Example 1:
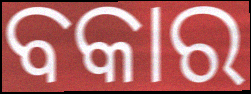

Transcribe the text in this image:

ବକାର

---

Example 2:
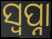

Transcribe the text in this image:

ସ୍ୱପ୍ନା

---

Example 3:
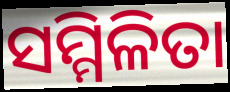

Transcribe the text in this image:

ସମ୍ମିଳିତା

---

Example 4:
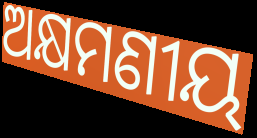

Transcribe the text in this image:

ଅକ୍ଷମଣୀୟ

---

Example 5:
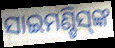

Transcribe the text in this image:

ସାଇମଣ୍ଡିସ୍‍ଙ୍କ